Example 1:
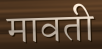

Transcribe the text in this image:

मावती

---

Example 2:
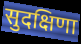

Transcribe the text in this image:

सुदक्षिणा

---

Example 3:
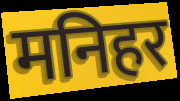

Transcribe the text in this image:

मनिहर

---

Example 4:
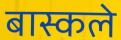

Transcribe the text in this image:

बास्कले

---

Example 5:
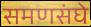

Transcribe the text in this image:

समणसंघे